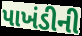
પાખંડીની